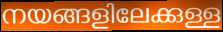
നയങ്ങളിലേക്കുള്ള